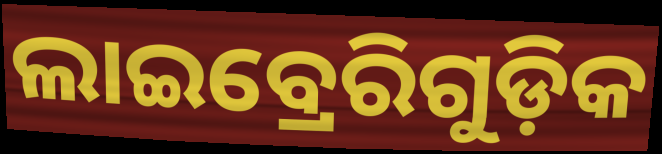
ଲାଇବ୍ରେରିଗୁଡ଼ିକ